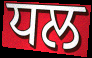
ਧਲ